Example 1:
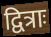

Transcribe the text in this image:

द्वित्राः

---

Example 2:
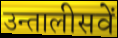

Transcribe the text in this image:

उन्तालीसवें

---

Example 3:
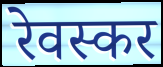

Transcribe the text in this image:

रेवस्कर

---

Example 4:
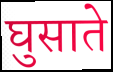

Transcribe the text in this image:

घुसाते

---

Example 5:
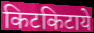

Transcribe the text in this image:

किटकिटाये